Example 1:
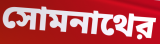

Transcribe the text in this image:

সোমনাথের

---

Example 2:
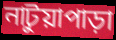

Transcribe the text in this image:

নাটুয়াপাড়া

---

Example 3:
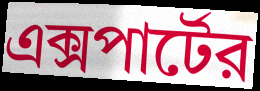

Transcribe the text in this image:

এক্সপার্টের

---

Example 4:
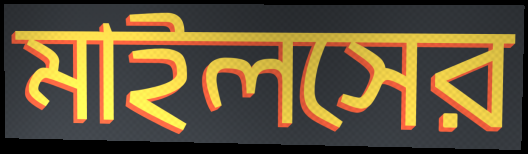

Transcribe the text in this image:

মাইলসের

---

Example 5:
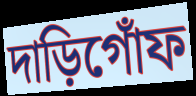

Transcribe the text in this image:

দাড়িগোঁফ